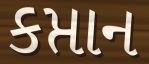
કપ્તાન